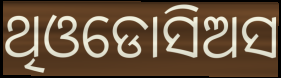
ଥିଓଡୋସିଅସ